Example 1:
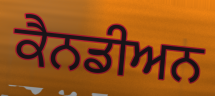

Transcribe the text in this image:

ਕੈਨਡੀਅਨ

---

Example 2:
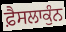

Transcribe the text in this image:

ਫ਼ੈਸਲਾਕੁੰਨ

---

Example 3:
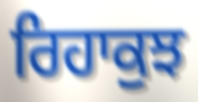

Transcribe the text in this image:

ਰਿਹਾਕੁਝ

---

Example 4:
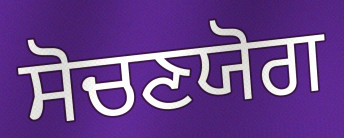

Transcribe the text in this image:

ਸੋਚਣਯੋਗ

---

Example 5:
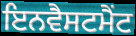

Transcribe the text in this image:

ਇਨਵੈਸਟਮੈਂਟ